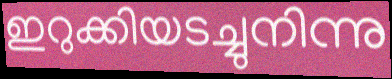
ഇറുക്കിയടച്ചുനിന്നു